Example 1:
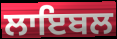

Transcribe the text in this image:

ਲਾਇਬਲ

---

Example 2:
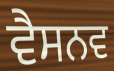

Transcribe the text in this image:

ਵੈਸਨਵ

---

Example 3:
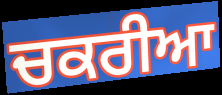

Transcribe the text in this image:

ਚਕਰੀਆ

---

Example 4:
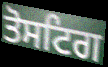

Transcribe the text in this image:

ਤੋਸਟਿਗ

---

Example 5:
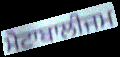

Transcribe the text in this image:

ਮੈਟਾਬਾਲੀਜਮ